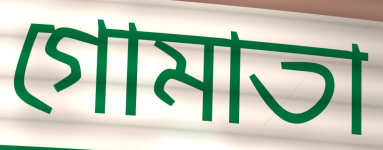
গোমাতা